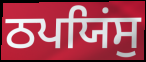
ਠਪਯਿਂਸੁ